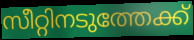
സീറ്റിനടുത്തേക്ക്